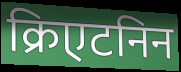
क्रिएटनिन